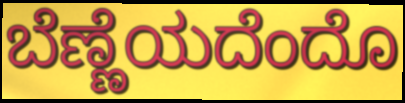
ಬೆಣ್ಣೆಯದೆಂದೊ